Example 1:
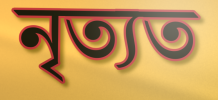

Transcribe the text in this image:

নৃত্যত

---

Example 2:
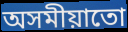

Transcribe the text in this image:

অসমীয়াতো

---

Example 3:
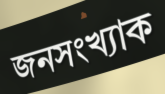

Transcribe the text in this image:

জনসংখ্যাক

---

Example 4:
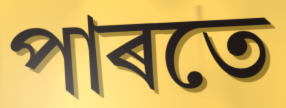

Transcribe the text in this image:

পাৰতে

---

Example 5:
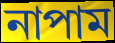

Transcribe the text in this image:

নাপাম